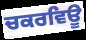
ਚਕਰਵਿਊ